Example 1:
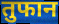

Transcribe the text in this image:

तुफान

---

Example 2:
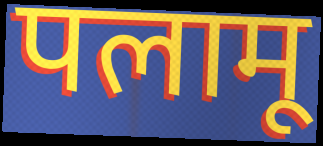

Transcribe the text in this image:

पलामू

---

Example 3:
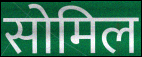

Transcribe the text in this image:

सोमिल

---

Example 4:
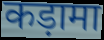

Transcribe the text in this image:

कड़ामा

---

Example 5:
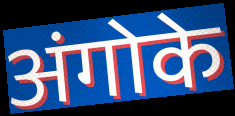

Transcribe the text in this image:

अंगोके